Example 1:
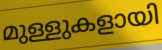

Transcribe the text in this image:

മുള്ളുകളായി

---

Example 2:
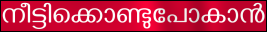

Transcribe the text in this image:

നീട്ടിക്കൊണ്ടുപോകാൻ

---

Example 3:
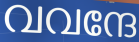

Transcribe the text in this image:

വവന്ദേ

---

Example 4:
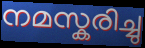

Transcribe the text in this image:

നമസ്കരിച്ചു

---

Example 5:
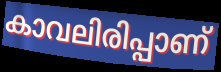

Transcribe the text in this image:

കാവലിരിപ്പാണ്